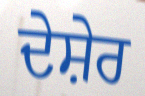
ਦੇਸ਼ੇਰ